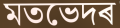
মতভেদৰ